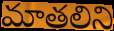
మాతలిని